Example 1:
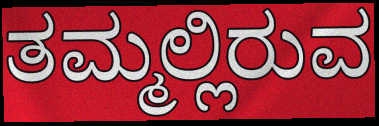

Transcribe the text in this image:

ತಮ್ಮಲ್ಲಿರುವ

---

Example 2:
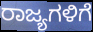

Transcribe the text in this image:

ರಾಜ್ಯಗಳಿಗೆ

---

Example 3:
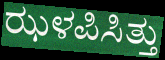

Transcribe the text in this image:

ಝಳಪಿಸಿತ್ತು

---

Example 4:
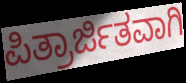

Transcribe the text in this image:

ಪಿತ್ರಾರ್ಜಿತವಾಗಿ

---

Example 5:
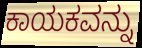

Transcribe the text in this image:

ಕಾಯಕವನ್ನು